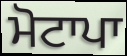
ਮੋਟਾਪਾ